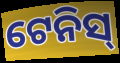
ଟେନିସ୍